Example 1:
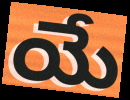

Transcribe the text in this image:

యే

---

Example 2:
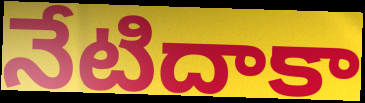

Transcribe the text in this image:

నేటిదాకా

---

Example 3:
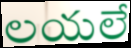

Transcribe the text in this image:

లయలే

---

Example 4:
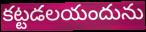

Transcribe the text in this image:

కట్టడలయందును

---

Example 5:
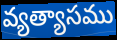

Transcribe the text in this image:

వ్యత్యాసము